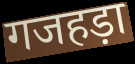
गजहड़ा